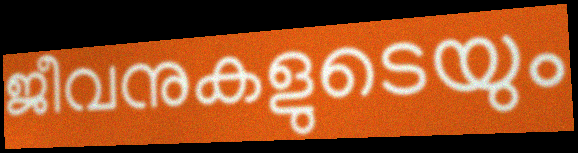
ജീവനുകളുടെയും